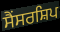
ਸੈਂਸਰਸ਼ਿਪ